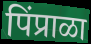
पिंप्राळा